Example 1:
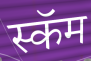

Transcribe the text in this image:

स्कॅम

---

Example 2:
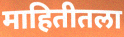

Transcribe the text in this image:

माहितीतला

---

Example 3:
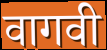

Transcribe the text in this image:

वागवी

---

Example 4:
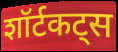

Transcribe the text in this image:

शॉर्टकट्स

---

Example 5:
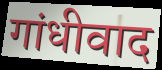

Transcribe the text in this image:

गांधीवाद